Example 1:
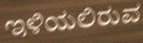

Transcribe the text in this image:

ಇಳಿಯಲಿರುವ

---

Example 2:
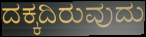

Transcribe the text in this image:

ದಕ್ಕದಿರುವುದು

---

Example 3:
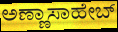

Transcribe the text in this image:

ಅಣ್ಣಾಸಾಹೇಬ್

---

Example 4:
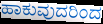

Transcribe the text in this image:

ಹಾಕುವುದರಿಂದ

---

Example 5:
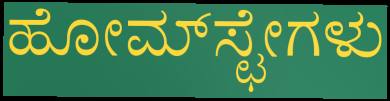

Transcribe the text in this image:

ಹೋಮ್‌ಸ್ಟೇಗಳು